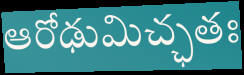
ఆరోఢుమిచ్ఛతః